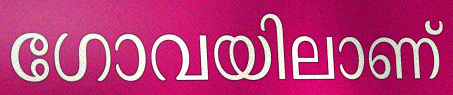
ഗോവയിലാണ്